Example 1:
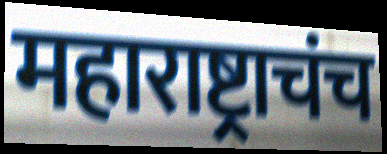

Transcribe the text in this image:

महाराष्ट्राचंच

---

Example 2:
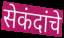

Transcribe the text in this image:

सेकंदांचे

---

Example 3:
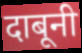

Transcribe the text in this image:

दाबूनी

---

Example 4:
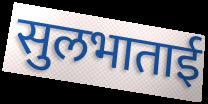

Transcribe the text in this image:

सुलभाताई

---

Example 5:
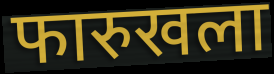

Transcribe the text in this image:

फारुखला